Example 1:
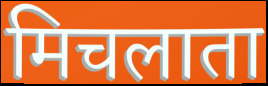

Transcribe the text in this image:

मिचलाता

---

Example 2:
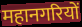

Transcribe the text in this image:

महानगरियों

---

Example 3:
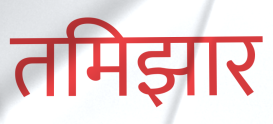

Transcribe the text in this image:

तमिझार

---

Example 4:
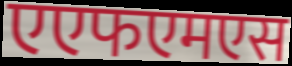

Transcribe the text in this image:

एएफएमएस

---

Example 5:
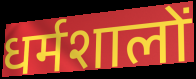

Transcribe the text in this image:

धर्मशालों